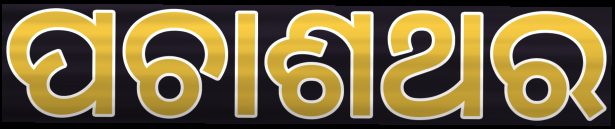
ପଚାଶଥର